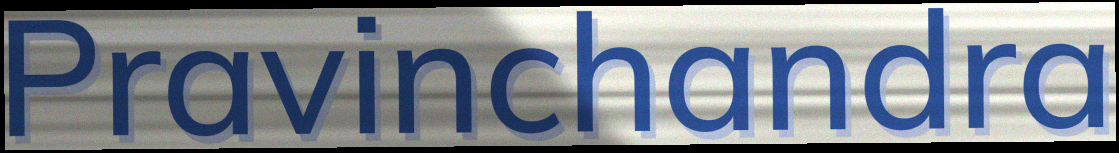
Pravinchandra